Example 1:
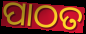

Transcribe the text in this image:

ପାଠତ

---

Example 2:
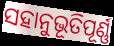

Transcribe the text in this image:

ସହାନୁଭୂତିପୂର୍ଣ୍ଣ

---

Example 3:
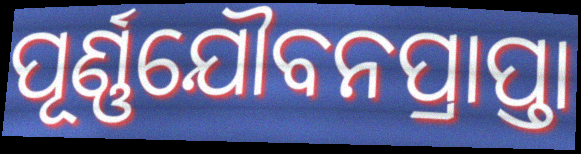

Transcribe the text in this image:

ପୂର୍ଣ୍ଣଯୌବନପ୍ରାପ୍ତା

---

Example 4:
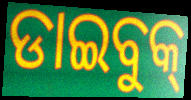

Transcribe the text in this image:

ଡାଇବୁକ୍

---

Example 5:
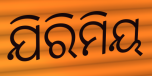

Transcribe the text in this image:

ଯିରିମିୟ